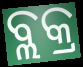
ବ୍ଲକ୍ର